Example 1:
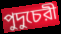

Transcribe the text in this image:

পুদুচেরী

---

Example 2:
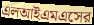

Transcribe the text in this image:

এলআইএমএসের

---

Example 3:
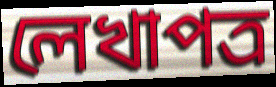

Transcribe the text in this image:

লেখাপত্র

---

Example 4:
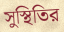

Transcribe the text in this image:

সুস্থিতির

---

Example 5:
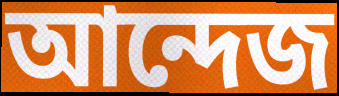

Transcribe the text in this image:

আন্দেজ